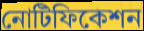
নোটিফিকেশন